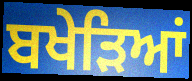
ਬਖੇੜਿਆਂ